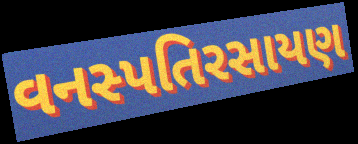
વનસ્પતિરસાયણ